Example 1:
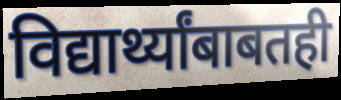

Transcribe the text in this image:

विद्यार्थ्यांबाबतही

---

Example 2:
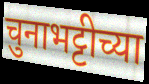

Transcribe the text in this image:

चुनाभट्टीच्या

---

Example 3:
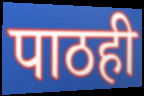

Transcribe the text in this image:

पाठही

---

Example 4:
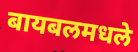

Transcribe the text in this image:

बायबलमधले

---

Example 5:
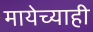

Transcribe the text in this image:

मायेच्याही